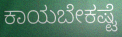
ಕಾಯಬೇಕಷ್ಟೆ